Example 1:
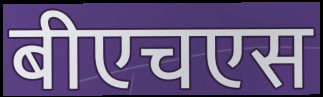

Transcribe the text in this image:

बीएचएस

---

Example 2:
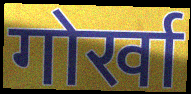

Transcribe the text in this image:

गोर्खा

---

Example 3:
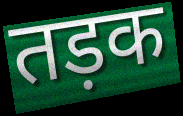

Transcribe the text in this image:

तड़क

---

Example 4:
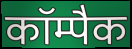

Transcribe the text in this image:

कॉम्पैक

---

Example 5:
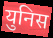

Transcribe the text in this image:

युनिस